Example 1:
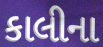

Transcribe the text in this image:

કાલીના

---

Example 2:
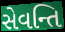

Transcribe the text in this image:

સેવન્તિ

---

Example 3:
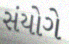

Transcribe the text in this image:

સંયોગે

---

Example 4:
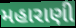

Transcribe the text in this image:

મહારાણી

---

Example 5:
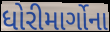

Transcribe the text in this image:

ધોરીમાર્ગોના